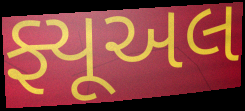
ફ્યૂઅલ